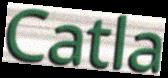
Catla